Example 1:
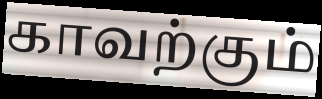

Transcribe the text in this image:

காவற்கும்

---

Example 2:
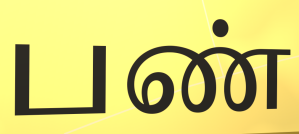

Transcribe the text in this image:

பண்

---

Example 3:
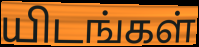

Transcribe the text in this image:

யிடங்கள்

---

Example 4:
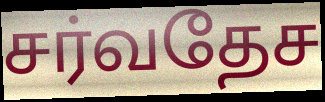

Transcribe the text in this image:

சர்வதேச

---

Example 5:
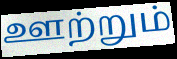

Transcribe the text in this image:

ஊற்றும்